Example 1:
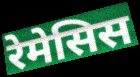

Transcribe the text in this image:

रेमेसिस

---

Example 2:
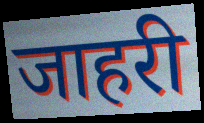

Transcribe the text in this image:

जाहरी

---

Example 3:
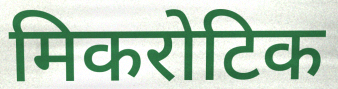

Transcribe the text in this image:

मिकरोटिक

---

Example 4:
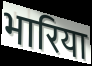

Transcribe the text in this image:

भारिया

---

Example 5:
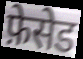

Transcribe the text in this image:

फ़ेसेड